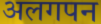
अलगपन